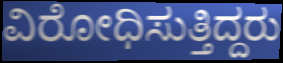
ವಿರೋಧಿಸುತ್ತಿದ್ದರು